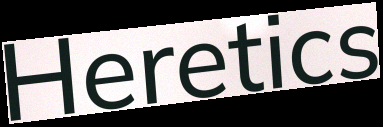
Heretics